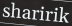
sharirik